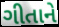
ગીતાને